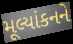
મૂલ્યાંકનને